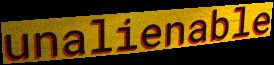
unalienable